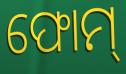
ଫୋମ୍